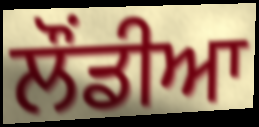
ਲੌਂਡੀਆ